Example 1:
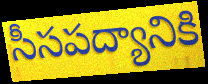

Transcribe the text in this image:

సీసపద్యానికి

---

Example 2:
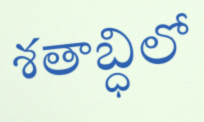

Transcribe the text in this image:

శతాబ్ధిలో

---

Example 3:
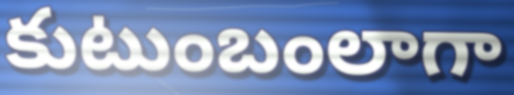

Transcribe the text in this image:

కుటుంబంలాగా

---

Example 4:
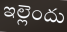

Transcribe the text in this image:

ఇల్లెందు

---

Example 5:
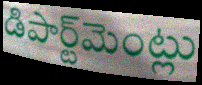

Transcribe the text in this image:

డిపార్ట్‌మెంట్లు